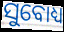
ସୁବୋଧ୍ୟ